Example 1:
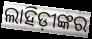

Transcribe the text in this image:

ଲାହିଡ଼ୀଙ୍କର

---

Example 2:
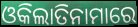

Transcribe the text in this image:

ଓକିଲାତିନାମାରେ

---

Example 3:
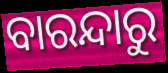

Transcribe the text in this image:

ବାରନ୍ଦାରୁ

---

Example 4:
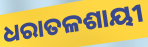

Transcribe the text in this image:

ଧରାତଳଶାୟୀ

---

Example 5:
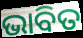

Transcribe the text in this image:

ଭାବିତ